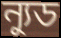
ন্যুড